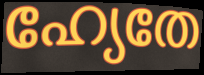
ഹ്യേതേ